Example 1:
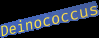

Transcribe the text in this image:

Deinococcus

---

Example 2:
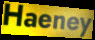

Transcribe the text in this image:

Haeney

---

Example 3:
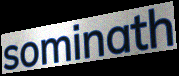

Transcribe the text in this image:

sominath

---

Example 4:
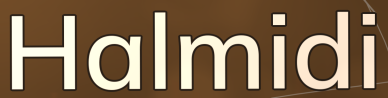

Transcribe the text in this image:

Halmidi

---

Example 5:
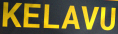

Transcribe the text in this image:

KELAVU